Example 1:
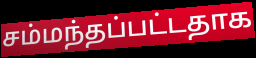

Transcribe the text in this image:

சம்மந்தப்பட்டதாக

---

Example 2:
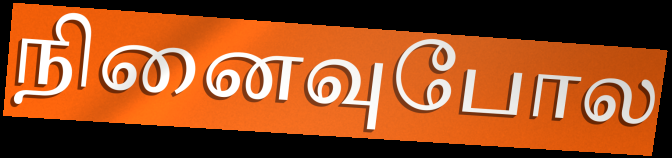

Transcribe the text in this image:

நினைவுபோல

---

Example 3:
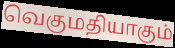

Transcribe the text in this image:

வெகுமதியாகும்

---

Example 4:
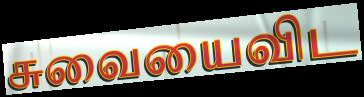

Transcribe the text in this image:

சுவையைவிட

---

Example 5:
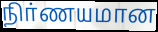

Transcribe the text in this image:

நிர்ணயமான